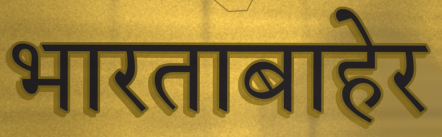
भारताबाहेर